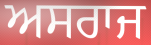
ਅਸਰਾਜ